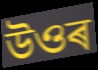
উওৰ